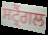
ਸਟ੍ਰੈਂਗਲ